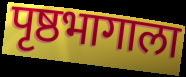
पृष्ठभागाला